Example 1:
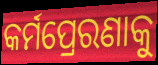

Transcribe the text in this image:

କର୍ମପ୍ରେରଣାକୁ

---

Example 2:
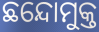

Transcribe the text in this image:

ଛନ୍ଦୋମୁକ୍ତ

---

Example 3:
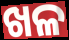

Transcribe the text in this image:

ଖଳ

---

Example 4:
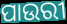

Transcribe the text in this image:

ପାଉରୀ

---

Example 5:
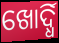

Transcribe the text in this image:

ଖୋର୍ଦ୍ଧି